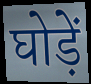
घोड़ें